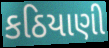
કઠિયાણી